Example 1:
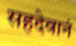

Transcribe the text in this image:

सहदेवानं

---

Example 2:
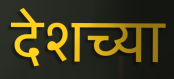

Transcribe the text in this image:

देशच्या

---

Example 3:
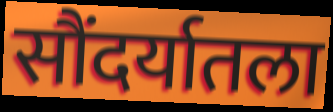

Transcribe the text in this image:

सौंदर्यातला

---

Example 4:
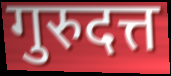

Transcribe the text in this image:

गुरुदत्त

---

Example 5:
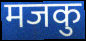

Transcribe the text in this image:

मजकु